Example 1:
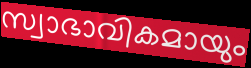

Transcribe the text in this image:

സ്വാഭാവികമായും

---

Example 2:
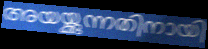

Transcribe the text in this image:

അയയ്ക്കുന്നതിനായി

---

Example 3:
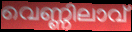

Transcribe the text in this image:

വെണ്ണിലാവ്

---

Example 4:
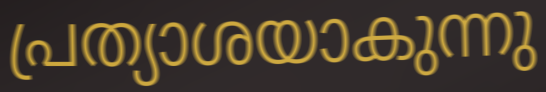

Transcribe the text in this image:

പ്രത്യാശയാകുന്നു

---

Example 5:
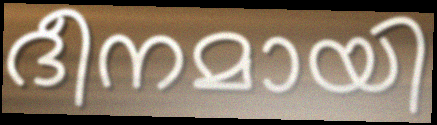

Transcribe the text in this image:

ദീനമായി